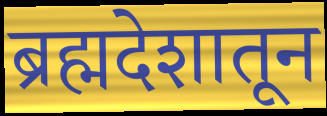
ब्रह्मदेशातून